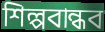
শিল্পবান্ধব